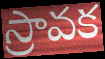
స్రావక